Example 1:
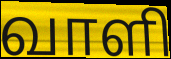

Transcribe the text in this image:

வாளி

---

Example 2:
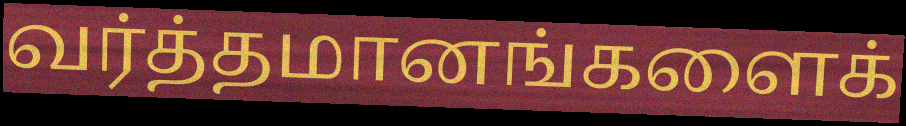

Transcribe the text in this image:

வர்த்தமானங்களைக்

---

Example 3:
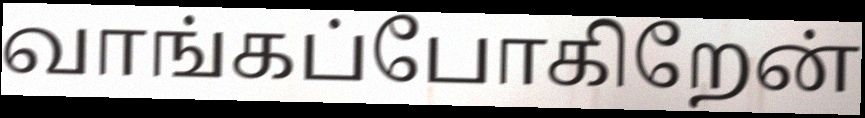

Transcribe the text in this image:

வாங்கப்போகிறேன்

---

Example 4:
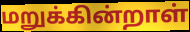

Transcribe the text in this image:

மறுக்கின்றாள்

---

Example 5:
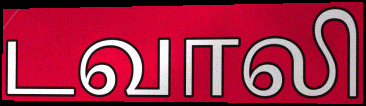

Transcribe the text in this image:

டவாலி